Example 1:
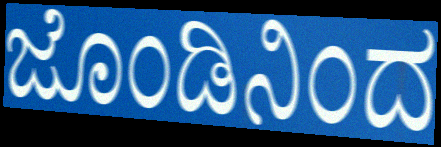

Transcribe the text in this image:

ಜೊಂಡಿನಿಂದ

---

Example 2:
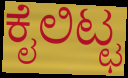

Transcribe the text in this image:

ಕೈಲಿಟ್ಟ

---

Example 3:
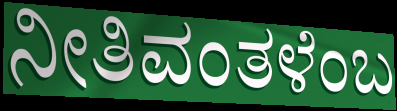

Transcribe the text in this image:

ನೀತಿವಂತಳೆಂಬ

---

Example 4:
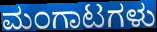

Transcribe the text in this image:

ಮಂಗಾಟಗಳು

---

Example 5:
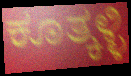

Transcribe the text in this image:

ಕೂತ್ಕಳ್ಳಿ